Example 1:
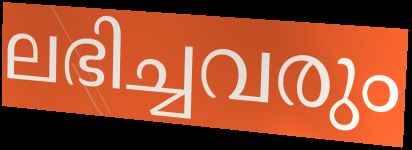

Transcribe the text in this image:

ലഭിച്ചവരും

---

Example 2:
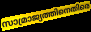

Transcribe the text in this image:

സാമ്രാജ്യത്തിനെതിരെ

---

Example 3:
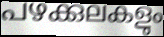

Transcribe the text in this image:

പഴക്കുലകളും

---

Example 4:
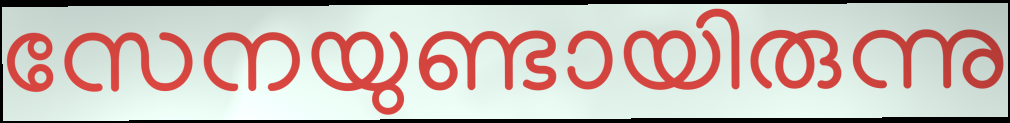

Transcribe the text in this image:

സേനയുണ്ടായിരുന്നു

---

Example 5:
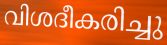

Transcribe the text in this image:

വിശദീകരിച്ചു